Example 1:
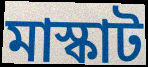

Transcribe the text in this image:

মাস্কাট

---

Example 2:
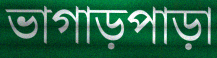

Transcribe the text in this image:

ভাগাড়পাড়া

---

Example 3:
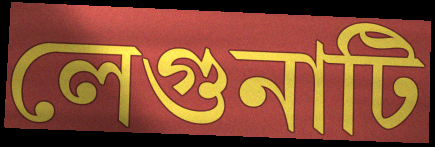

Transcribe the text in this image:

লেগুনাটি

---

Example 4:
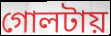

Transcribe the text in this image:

গোলটায়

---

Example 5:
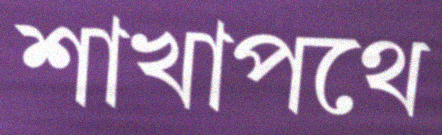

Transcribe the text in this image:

শাখাপথে